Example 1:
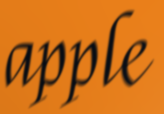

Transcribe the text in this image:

apple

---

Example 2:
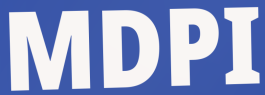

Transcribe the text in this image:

MDPI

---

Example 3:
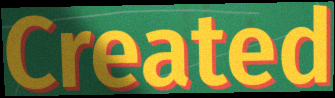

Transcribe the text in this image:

Created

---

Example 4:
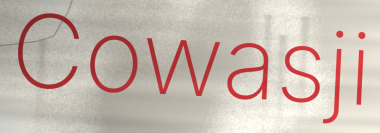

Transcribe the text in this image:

Cowasji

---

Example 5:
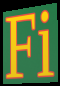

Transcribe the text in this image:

Fi